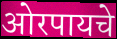
ओरपायचे